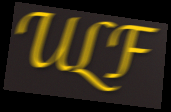
ULF